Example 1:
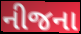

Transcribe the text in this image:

નીજના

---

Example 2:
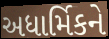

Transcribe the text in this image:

અધાર્મિકને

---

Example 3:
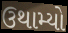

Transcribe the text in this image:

ઉથામ્યો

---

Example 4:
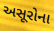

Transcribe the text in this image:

અસૂરોના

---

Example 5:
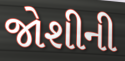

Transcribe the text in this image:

જોશીની